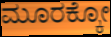
ಮೂರಕ್ಕೋ